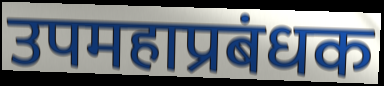
उपमहाप्रबंधक